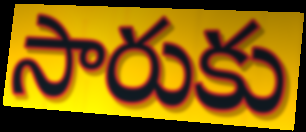
సారుకు